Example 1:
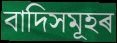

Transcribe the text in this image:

বাদিসমূহৰ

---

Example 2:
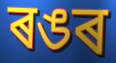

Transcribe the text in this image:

ৰঙৰ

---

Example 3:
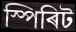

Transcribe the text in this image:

স্পিৰিট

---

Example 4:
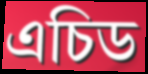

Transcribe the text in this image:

এচিড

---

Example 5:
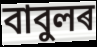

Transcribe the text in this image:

বাবুলৰ